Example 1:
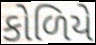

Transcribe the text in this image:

કોળિયે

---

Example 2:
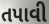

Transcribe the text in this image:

તપાવી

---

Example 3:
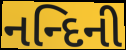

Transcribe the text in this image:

નન્દિની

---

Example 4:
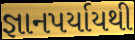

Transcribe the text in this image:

જ્ઞાનપર્યાયથી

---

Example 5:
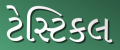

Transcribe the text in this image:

ટેસ્ટિકલ